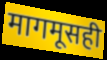
मागमूसही